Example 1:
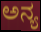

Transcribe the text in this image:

ಅನ್ಯ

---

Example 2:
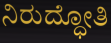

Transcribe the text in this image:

ನಿರುದ್ಧೋತಿ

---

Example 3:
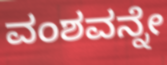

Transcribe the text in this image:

ವಂಶವನ್ನೇ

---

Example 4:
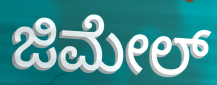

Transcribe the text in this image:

ಜಿಮೇಲ್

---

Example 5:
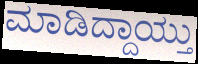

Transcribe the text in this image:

ಮಾಡಿದ್ದಾಯ್ತು